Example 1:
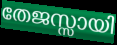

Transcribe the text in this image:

തേജസ്സായി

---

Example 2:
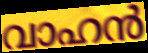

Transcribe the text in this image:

വാഹൻ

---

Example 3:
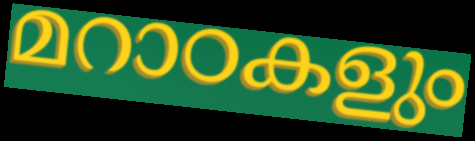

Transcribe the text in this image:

മറാഠകളും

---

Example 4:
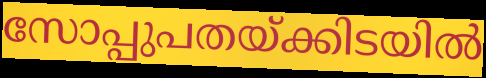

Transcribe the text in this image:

സോപ്പുപതയ്ക്കിടയിൽ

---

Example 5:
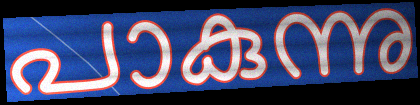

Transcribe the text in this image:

പാകുന്നു